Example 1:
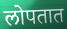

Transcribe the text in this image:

लोपतात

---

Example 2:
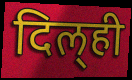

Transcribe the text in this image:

दिल्ही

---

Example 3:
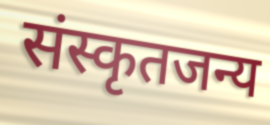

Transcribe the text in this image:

संस्कृतजन्य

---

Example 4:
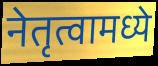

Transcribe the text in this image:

नेतृत्वामध्ये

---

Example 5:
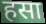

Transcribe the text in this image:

हसा